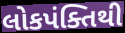
લોકપંક્તિથી